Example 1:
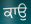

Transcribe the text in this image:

ਕਾਉ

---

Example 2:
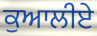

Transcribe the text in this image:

ਕੁਆਲੀਏ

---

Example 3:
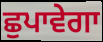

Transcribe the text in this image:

ਛੁਪਾਵੇਗਾ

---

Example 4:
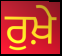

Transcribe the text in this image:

ਰੁਖ਼ੇ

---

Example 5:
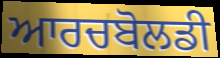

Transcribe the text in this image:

ਆਰਚਬੋਲਡੀ